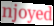
njoyed